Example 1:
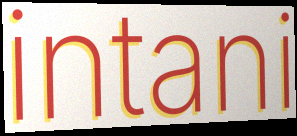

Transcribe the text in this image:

intani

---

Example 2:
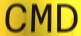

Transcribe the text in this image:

CMD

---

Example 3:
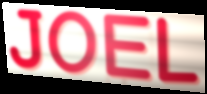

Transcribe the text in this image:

JOEL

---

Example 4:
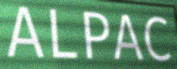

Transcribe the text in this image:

ALPAC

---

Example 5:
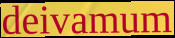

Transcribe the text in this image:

deivamum